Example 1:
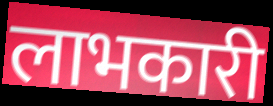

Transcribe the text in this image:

लाभकारी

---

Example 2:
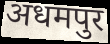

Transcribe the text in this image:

अधमपुर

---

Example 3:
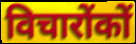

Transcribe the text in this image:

विचारोंकों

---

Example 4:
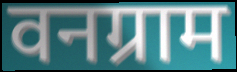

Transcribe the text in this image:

वनग्राम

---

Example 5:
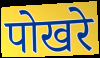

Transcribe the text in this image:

पोखरे